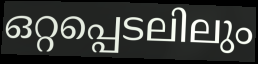
ഒറ്റപ്പെടലിലും